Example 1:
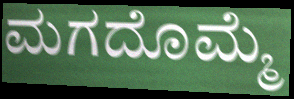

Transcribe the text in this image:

ಮಗದೊಮ್ಮೆ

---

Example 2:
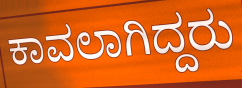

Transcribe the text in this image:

ಕಾವಲಾಗಿದ್ದರು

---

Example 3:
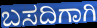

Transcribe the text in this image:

ಬಸದಿಗಾಗಿ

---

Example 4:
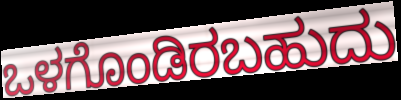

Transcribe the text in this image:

ಒಳಗೊಂಡಿರಬಹುದು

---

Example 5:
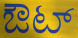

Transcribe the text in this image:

ಔಟ್